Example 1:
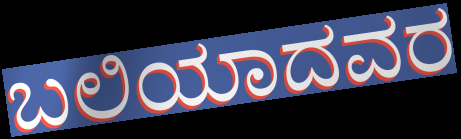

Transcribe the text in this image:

ಬಲಿಯಾದವರ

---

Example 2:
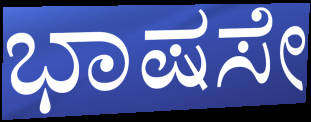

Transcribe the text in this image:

ಭಾಷಸೇ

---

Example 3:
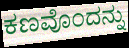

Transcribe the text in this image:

ಕಣವೊಂದನ್ನು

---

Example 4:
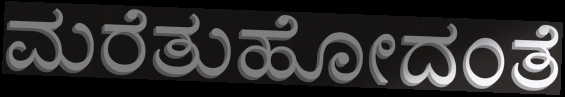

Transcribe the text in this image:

ಮರೆತುಹೋದಂತೆ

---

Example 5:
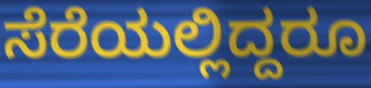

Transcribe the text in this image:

ಸೆರೆಯಲ್ಲಿದ್ದರೂ